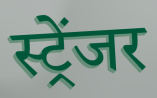
स्ट्रेंजर